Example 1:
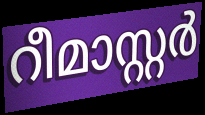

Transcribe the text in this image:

റീമാസ്റ്റർ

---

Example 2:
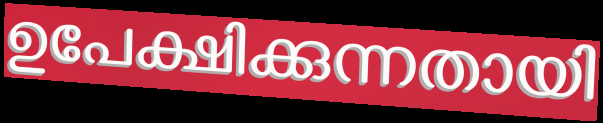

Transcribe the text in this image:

ഉപേക്ഷിക്കുന്നതായി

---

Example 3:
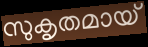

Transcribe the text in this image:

സുകൃതമായ്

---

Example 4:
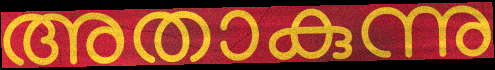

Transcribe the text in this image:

അതാകുന്നു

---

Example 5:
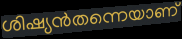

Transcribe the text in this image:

ശിഷ്യൻതന്നെയാണ്